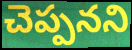
చెప్పనని